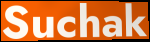
Suchak